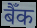
बैँक